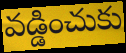
వడ్డించుకు